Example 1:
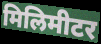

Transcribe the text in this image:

मिलिमीटर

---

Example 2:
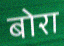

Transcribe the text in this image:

बोरा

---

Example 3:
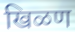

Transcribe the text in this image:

खिळण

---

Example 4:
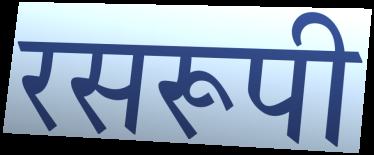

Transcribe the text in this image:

रसरूपी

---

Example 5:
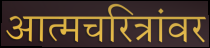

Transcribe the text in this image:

आत्मचरित्रांवर